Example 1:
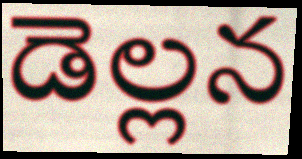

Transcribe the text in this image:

డెల్లన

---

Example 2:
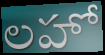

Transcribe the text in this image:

లహో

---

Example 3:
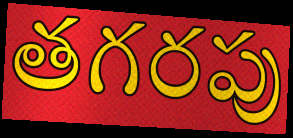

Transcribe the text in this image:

తగరపు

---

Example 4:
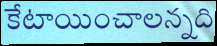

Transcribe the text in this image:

కేటాయించాలన్నది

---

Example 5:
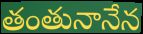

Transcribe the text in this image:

తంతునానేన